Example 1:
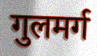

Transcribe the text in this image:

गुलमर्ग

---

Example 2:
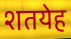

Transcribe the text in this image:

शतयेह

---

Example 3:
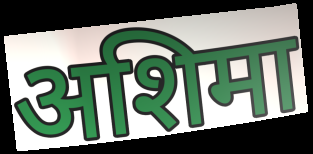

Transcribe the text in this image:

अशिमा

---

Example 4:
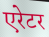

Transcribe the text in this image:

एरेटर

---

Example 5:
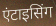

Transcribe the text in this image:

एंटाइसिंग